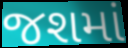
જશમાં